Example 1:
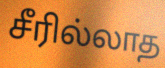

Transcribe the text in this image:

சீரில்லாத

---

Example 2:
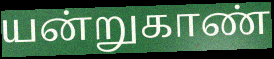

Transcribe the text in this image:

யன்றுகாண்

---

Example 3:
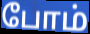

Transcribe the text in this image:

போம்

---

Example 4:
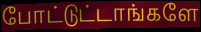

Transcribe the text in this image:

போட்டுட்டாங்களே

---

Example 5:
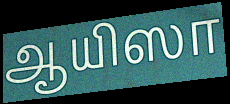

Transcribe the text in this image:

ஆயிஸா